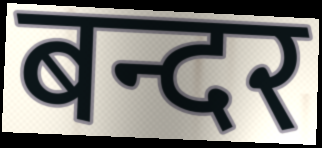
बन्दर